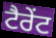
ਟੈਰੇਂਟ